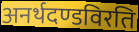
अनर्थदण्डविरति